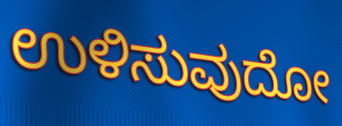
ಉಳಿಸುವುದೋ